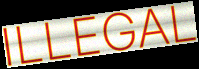
ILLEGAL